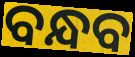
ବନ୍ଧବ